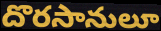
దొరసానులూ